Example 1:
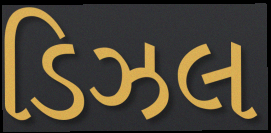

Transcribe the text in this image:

ડિઝલ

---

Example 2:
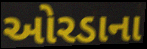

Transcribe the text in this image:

ઓરડાના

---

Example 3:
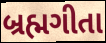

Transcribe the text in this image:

બ્રહ્મગીતા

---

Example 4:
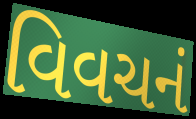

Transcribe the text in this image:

વિવચનં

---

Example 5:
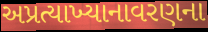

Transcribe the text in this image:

અપ્રત્યાખ્યાનાવરણના